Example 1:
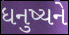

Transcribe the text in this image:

ધનુષ્યને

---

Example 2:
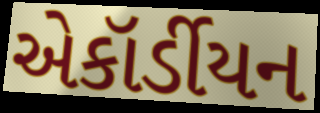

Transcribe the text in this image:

એકૉર્ડીયન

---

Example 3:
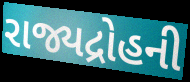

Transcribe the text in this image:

રાજ્યદ્રોહની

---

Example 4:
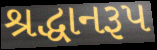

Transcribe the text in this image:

શ્રદ્ધાનરૂપ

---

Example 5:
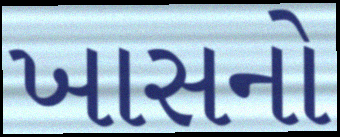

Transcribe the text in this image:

ખાસનો